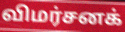
விமர்சனக்